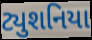
ટ્યુશનિયા